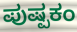
ಪುಷ್ಪಕಂ